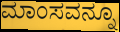
ಮಾಂಸವನ್ನೂ